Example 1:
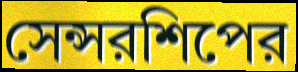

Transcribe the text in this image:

সেন্সরশিপের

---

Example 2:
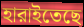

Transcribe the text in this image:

হারাইতেছে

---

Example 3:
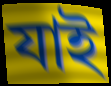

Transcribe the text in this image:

যাই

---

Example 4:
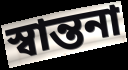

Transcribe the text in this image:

স্বান্তনা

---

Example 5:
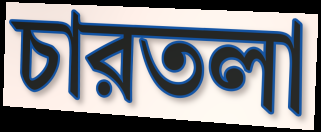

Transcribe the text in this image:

চারতলা